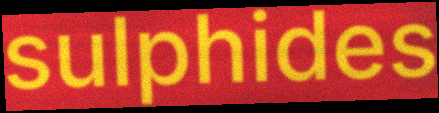
sulphides